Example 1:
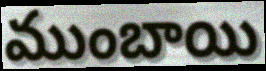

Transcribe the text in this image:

ముంబాయి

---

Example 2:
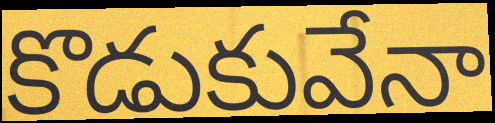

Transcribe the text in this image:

కొడుకువేనా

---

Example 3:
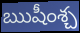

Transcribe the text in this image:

ఋషీంశ్చ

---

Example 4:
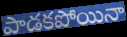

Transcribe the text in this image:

పాడకపోయినా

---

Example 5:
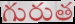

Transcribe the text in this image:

గురుత